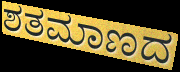
ಶತಮಾಣದ